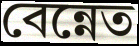
বেন্নেত